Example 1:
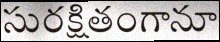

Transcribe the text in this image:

సురక్షితంగానూ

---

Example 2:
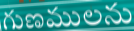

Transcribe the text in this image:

గుణములను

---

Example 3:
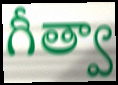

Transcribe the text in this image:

గీత్వా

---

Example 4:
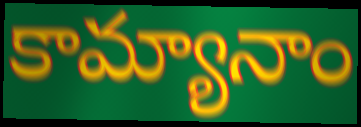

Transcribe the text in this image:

కామ్యానాం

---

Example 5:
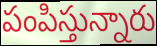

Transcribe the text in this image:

పంపిస్తున్నారు